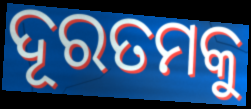
ଦୂରତମକୁ